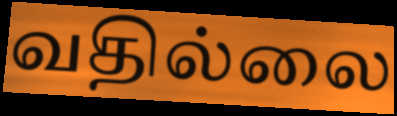
வதில்லை